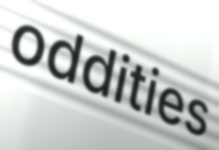
oddities